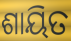
ଶାୟିତ